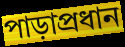
পাড়াপ্রধান